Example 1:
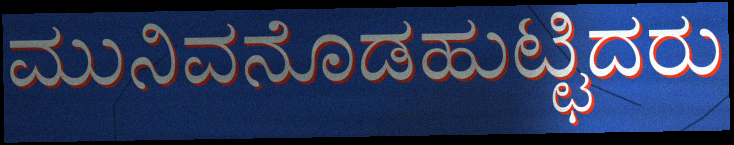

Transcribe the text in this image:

ಮುನಿವನೊಡಹುಟ್ಟಿದರು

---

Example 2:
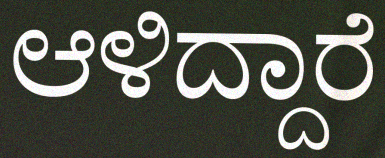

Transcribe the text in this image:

ಆಳಿದ್ದಾರೆ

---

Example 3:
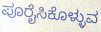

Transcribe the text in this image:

ಪೂರೈಸಿಕೊಳ್ಳುವ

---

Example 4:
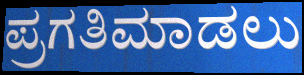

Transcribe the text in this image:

ಪ್ರಗತಿಮಾಡಲು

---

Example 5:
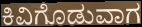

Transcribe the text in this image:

ಕಿವಿಗೊಡುವಾಗ